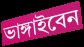
ভাঙ্গাইবেন